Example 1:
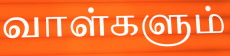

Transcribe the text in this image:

வாள்களும்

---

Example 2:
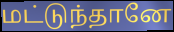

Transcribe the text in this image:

மட்டுந்தானே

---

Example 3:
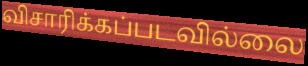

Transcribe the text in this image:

விசாரிக்கப்படவில்லை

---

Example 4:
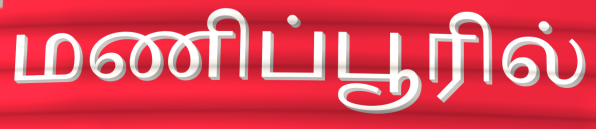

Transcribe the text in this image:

மணிப்பூரில்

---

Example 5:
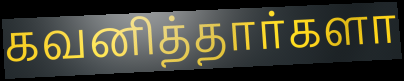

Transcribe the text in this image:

கவனித்தார்களா